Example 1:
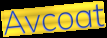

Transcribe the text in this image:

Avcoat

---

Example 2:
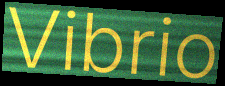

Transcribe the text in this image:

Vibrio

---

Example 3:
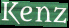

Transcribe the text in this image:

Kenz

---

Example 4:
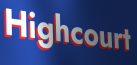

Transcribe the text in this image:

Highcourt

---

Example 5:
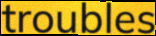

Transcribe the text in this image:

troubles